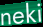
neki